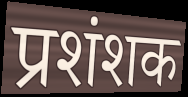
प्रशंशक